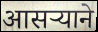
आसर्‍याने